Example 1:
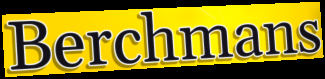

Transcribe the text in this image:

Berchmans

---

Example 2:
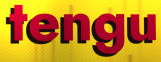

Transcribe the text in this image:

tengu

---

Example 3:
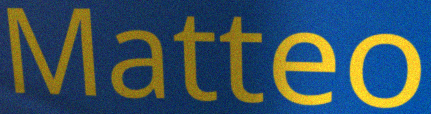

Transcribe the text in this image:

Matteo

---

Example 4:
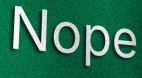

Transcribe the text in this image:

Nope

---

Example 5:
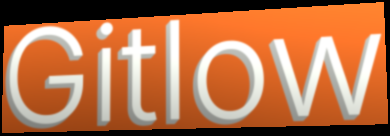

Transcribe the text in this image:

Gitlow